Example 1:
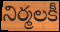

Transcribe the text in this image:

నిర్మలకీ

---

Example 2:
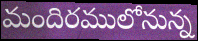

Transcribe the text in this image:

మందిరములోనున్న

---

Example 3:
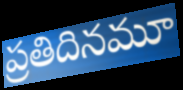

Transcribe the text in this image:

ప్రతిదినమూ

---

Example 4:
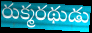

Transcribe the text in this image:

రుక్మరథుడు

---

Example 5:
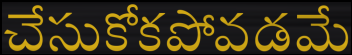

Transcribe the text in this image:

చేసుకోకపోవడమే